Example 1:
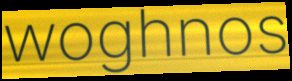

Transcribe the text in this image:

woghnos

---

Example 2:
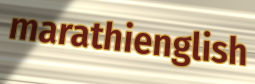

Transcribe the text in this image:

marathienglish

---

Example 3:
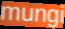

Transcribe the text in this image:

mungi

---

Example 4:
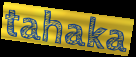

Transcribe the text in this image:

tahaka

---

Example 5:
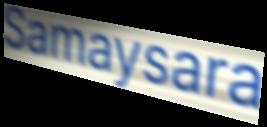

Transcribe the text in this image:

Samaysara